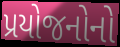
પ્રયોજનોનો